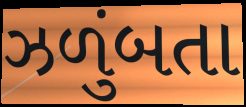
ઝળુંબતા